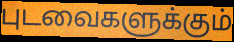
புடவைகளுக்கும்